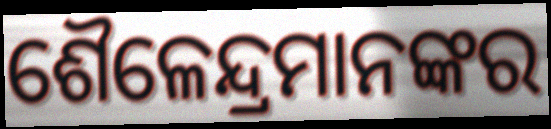
ଶୈଳେନ୍ଦ୍ରମାନଙ୍କର